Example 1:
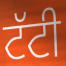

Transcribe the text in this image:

ਟੱਟੀ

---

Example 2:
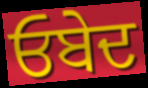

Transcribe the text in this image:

ਓਬੇਦ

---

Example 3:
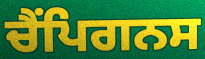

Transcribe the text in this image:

ਚੈਂਪਿਗਨਸ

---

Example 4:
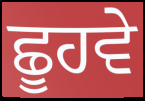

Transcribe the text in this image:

ਛੂਹਵੇ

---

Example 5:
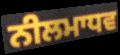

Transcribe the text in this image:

ਨੀਲਮਾਧਵ